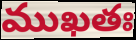
ముఖతః